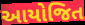
આયોજિત